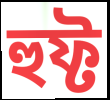
হুফ্ট